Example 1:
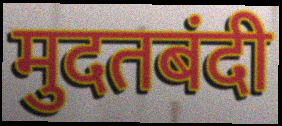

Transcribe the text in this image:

मुदतबंदी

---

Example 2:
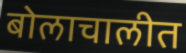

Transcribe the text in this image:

बोलाचालीत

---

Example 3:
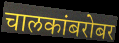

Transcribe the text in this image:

चालकांबरोबर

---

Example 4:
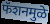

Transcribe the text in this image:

फॅशनमुळे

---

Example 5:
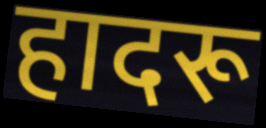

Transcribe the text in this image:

हादरू